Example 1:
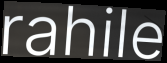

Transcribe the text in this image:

rahile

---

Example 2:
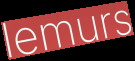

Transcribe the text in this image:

lemurs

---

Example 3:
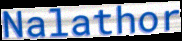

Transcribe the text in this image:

Nalathor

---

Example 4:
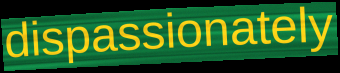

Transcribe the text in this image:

dispassionately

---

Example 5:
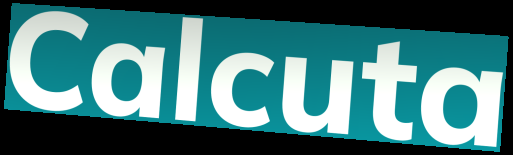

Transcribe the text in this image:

Calcuta